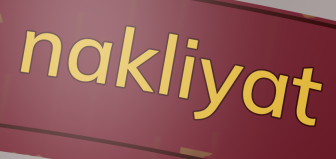
nakliyat